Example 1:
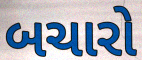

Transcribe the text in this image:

બચારો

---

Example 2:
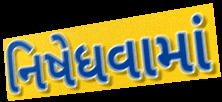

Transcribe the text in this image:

નિષેધવામાં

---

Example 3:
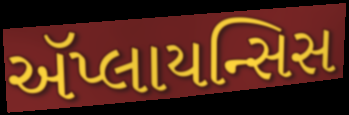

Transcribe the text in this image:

ઍપ્લાયન્સિસ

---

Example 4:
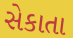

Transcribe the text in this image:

સેકાતા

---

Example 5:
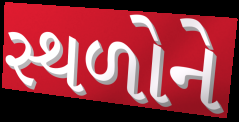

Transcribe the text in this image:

સ્થળોને